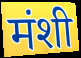
मंशी